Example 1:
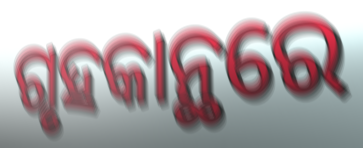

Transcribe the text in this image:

ଗୃହକାନ୍ଥରେ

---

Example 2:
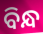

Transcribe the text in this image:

ବିନ୍ଧ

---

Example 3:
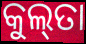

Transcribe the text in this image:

କୁଲ୍‌ତା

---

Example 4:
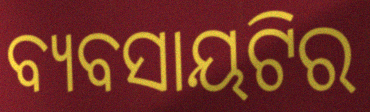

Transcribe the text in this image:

ବ୍ୟବସାୟଟିର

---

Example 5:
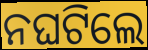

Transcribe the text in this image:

ନଘଟିଲେ